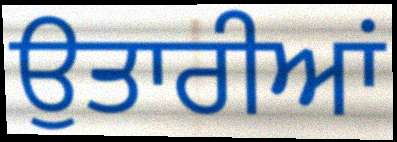
ਉਤਾਰੀਆਂ